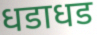
धडाधड